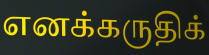
எனக்கருதிக்